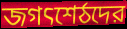
জগৎশেঠদের